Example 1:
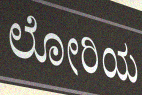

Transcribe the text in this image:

ಲೋರಿಯ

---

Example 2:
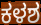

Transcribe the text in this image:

ಕಳಶ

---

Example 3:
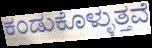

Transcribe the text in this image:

ಕಂಡುಕೊಳ್ಳುತ್ತವೆ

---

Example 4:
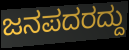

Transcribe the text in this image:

ಜನಪದರದ್ದು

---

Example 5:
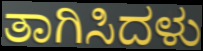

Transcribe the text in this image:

ತಾಗಿಸಿದಳು